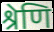
श्रेणि